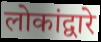
लोकांद्वारे